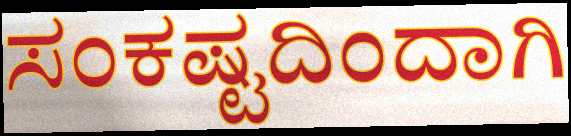
ಸಂಕಷ್ಟದಿಂದಾಗಿ